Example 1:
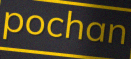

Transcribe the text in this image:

pochan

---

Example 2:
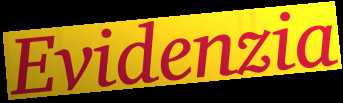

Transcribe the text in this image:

Evidenzia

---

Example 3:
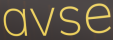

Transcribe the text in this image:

avse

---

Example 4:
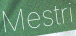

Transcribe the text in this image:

Mestri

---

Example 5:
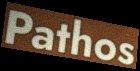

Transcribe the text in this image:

Pathos